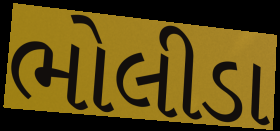
ભોલીડા